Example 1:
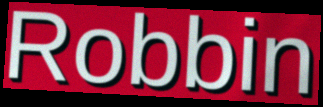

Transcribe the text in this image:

Robbin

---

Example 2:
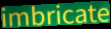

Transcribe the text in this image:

imbricate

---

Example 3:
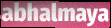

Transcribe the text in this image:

abhalmaya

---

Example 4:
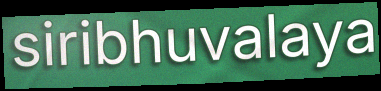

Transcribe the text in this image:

siribhuvalaya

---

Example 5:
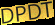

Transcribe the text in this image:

DPDT